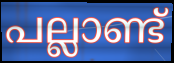
പല്ലാണ്ട്